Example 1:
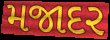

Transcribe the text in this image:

મજાદર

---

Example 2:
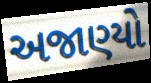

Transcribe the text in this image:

અજાણ્યો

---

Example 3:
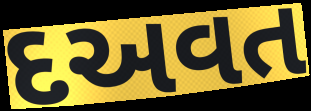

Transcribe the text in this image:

દઅવત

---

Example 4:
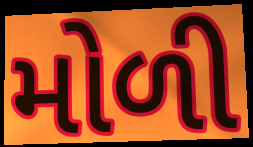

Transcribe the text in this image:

મોળી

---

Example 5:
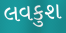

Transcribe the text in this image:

લવકુશ